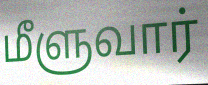
மீளுவார்